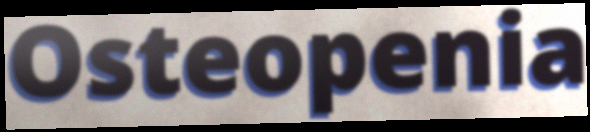
Osteopenia